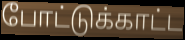
போட்டுக்காட்ட